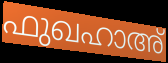
ഫുഖഹാഅ്